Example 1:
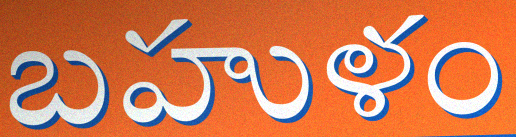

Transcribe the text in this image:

బహుళం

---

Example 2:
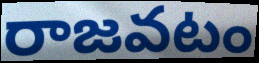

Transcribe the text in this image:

రాజవటం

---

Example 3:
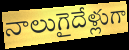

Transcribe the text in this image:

నాలుగైదేళ్లుగా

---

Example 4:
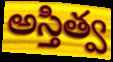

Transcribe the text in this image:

అస్తిత్వ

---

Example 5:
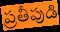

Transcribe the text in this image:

ప్రతీపుడి